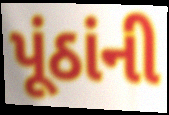
પૂંઠાંની